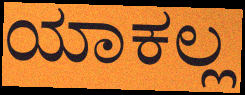
ಯಾಕಲ್ಲ